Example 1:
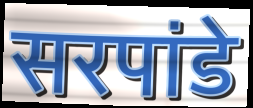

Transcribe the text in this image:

सरपांडे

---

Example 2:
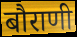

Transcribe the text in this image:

बौराणी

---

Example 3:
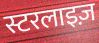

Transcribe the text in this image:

स्टरलाइज़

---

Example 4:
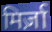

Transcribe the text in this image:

मिर्ज़ा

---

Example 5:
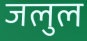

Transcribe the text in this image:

जलुल